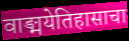
वाङ्मयेतिहासाचा